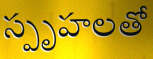
స్పృహలతో